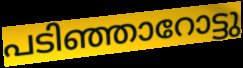
പടിഞ്ഞാറോട്ടു